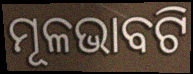
ମୂଳଭାବଟି